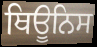
ਥਿਊਨਿਸ